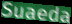
Suaeda